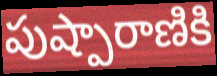
పుష్పారాణికి